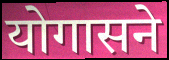
योगासने